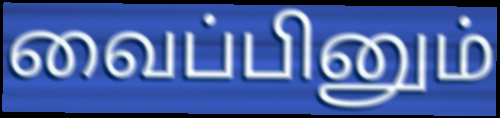
வைப்பினும்